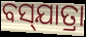
ବସ୍‌ଯାତ୍ରା